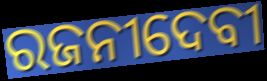
ରଜନୀଦେବୀ